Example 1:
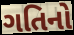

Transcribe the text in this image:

ગતિનો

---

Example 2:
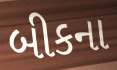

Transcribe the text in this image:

બીકના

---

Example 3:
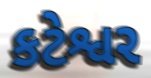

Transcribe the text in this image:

કટેશ્વર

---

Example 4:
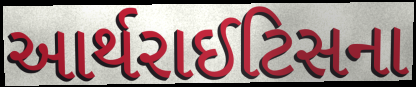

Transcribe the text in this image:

આર્થરાઈટિસના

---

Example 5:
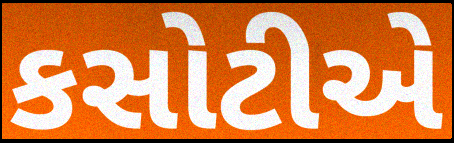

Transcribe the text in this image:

કસોટીએ